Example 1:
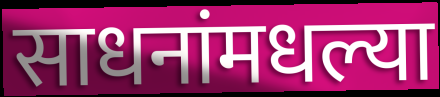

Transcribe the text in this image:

साधनांमधल्या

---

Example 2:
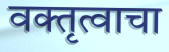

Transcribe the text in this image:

वक्तृत्वाचा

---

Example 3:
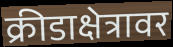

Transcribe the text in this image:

क्रीडाक्षेत्रावर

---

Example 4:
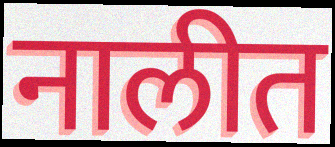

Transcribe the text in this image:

नालीत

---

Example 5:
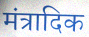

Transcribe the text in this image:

मंत्रादिक